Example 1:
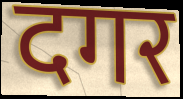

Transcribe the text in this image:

दगर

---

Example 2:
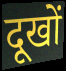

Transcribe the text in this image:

दूखों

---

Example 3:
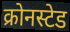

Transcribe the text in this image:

क्रोनस्टेड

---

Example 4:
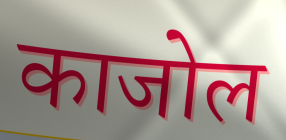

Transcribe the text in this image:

काजोल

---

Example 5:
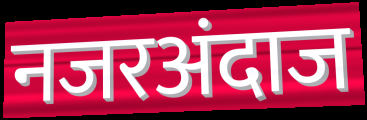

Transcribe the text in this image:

नजरअंदाज